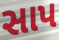
સાપ